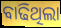
ବାଢିଥିଲା